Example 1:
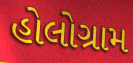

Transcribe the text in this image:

હોલોગ્રામ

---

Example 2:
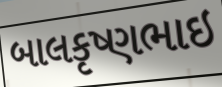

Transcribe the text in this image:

બાલકૃષ્ણભાઇ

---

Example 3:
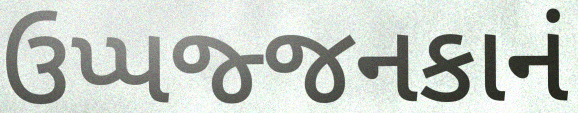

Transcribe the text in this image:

ઉપ્પજ્જનકાનં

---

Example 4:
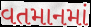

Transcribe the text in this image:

વતમાનમાં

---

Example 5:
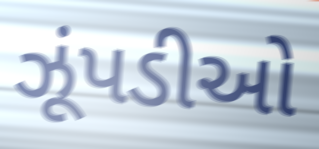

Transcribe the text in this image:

ઝૂંપડીઓ